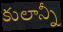
కులాన్నీ